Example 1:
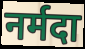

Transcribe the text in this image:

नर्मदा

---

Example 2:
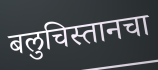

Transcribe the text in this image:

बलुचिस्तानचा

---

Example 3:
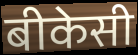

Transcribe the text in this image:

बीकेसी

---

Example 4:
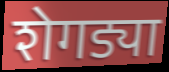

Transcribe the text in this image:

शेगड्या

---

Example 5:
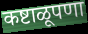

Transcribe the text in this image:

कष्टाळूपणा